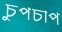
চুপচাপ